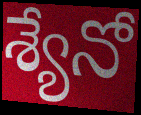
శ్యేనో